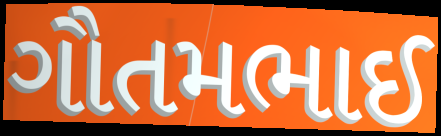
ગૌતમભાઈ